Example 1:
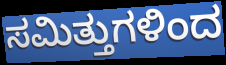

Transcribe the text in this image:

ಸಮಿತ್ತುಗಳಿಂದ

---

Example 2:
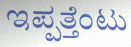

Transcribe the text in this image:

ಇಪ್ಪತ್ತೆಂಟು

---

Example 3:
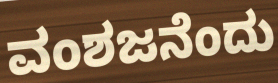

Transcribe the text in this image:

ವಂಶಜನೆಂದು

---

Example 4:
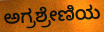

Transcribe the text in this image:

ಅಗ್ರಶ್ರೇಣಿಯ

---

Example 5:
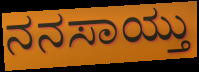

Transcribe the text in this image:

ನನಸಾಯ್ತು